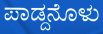
ಪಾಡ್ದನೊಳು